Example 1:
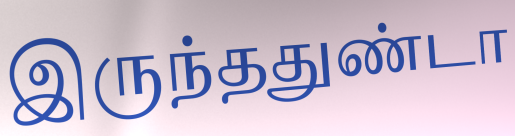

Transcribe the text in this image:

இருந்ததுண்டா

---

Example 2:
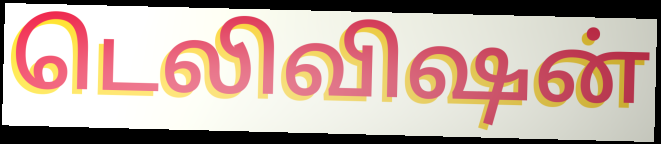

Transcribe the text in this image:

டெலிவிஷன்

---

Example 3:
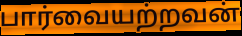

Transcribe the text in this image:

பார்வையற்றவன்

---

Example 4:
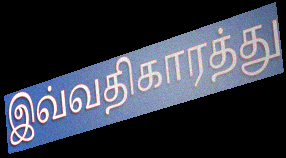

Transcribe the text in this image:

இவ்வதிகாரத்து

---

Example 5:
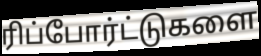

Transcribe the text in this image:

ரிப்போர்ட்டுகளை